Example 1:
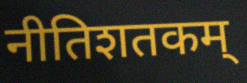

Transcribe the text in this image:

नीतिशतकम्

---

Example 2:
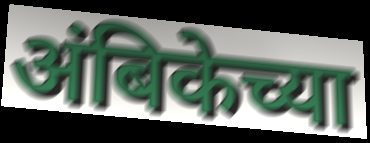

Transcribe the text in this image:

अंबिकेच्या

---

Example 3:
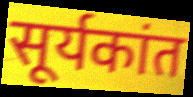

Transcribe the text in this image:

सूर्यकांत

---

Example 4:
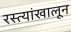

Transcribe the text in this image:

रस्त्यांखालून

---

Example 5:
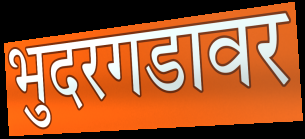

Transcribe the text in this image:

भुदरगडावर